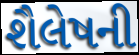
શૈલેષની